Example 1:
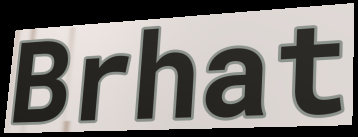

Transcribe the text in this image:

Brhat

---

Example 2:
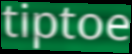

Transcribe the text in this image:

tiptoe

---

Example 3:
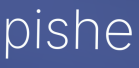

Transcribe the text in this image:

pishe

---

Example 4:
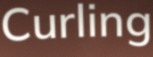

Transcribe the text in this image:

Curling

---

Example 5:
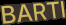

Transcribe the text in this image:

BARTI